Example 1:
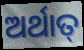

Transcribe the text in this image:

ଅର୍ଥାତ୍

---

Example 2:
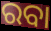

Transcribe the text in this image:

ରବା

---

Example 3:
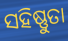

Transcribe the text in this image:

ସହିଷ୍ଣୁତା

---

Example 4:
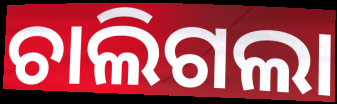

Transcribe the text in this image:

ଚାଲିଗଲା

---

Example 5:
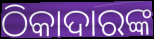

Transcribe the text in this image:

ଠିକାଦାରଙ୍କ